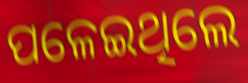
ପଳେଇଥିଲେ